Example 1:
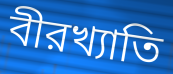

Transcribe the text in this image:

বীরখ্যাতি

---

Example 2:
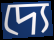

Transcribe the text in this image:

দ্যে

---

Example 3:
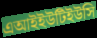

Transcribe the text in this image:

এআইইউটিইউসি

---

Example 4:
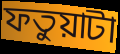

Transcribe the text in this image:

ফতুয়াটা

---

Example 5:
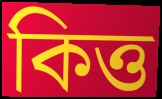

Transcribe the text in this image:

কিত্ত